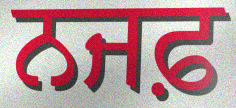
ਨਜਫ਼